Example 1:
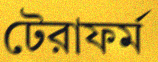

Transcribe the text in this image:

টেরাফর্ম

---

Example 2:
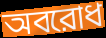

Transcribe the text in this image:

অবরোধ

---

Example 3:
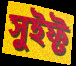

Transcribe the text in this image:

সুইফ্ট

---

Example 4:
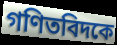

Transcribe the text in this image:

গণিতবিদকে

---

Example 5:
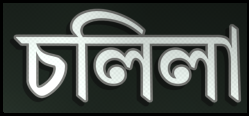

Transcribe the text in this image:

চলিলা